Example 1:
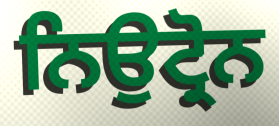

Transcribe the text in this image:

ਨਿਉਟ੍ਰੋਨ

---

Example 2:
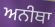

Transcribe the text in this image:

ਅਨੀਥਾ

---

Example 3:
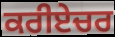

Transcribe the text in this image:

ਕਰੀਏਚਰ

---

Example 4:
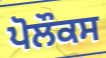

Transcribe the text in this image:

ਪੋਲੌਕਸ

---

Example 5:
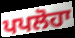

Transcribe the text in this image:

ਪਪਲੋਹਾ